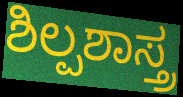
ಶಿಲ್ಪಶಾಸ್ತ್ರ